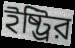
ইষ্ট্রির